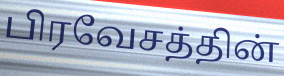
பிரவேசத்தின்